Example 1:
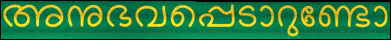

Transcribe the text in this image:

അനുഭവപ്പെടാറുണ്ടോ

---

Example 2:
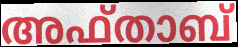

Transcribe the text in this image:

അഫ്താബ്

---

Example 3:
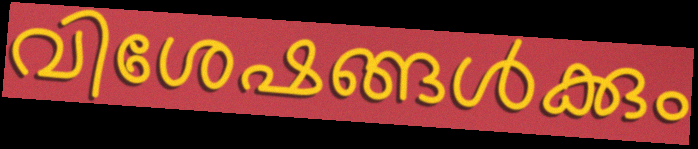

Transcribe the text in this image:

വിശേഷങ്ങൾക്കും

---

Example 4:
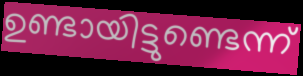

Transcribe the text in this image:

ഉണ്ടായിട്ടുണ്ടെന്ന്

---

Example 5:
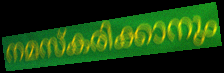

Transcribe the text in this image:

നമസ്കരിക്കാനും